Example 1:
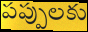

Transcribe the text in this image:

పప్పులకు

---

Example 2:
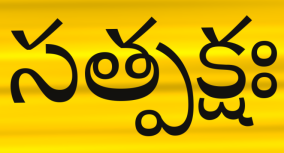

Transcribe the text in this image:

సత్పక్షః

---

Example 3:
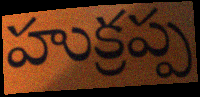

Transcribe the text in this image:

హుక్రప్ప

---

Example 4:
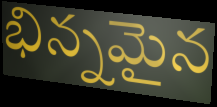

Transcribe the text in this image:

భిన్నమైన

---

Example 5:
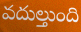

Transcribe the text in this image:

వదుల్తుంది